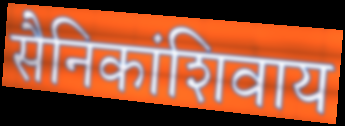
सैनिकांशिवाय